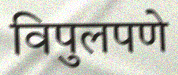
विपुलपणे